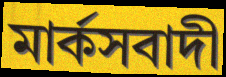
মার্কসবাদী